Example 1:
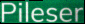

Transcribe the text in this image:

Pileser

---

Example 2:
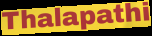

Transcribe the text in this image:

Thalapathi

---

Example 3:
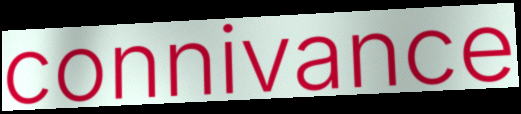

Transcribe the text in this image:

connivance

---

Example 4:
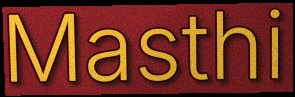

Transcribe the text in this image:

Masthi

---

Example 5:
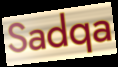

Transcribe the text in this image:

Sadqa